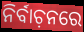
ନିର୍ବାଚ଼ନରେ